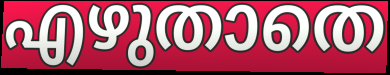
എഴുതാതെ